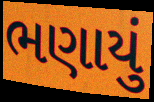
ભણાયું